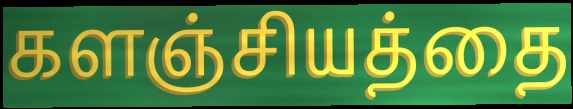
களஞ்சியத்தை